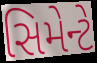
સિમેન્ટે